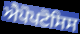
ਐਪੋਪਟੋਸਿਸ